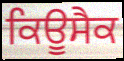
ਕਿਊਸੈਕ